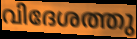
വിദേശത്തു